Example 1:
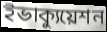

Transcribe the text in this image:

ইভাক্যুয়েশন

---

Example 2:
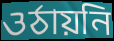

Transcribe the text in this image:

ওঠায়নি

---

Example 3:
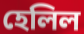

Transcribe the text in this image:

হেলিল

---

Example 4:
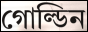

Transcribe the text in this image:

গোল্ডিন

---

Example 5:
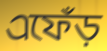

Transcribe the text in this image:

এফেঁড়